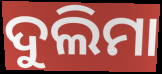
ଦୁଲିମା